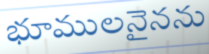
భూములనైనను